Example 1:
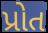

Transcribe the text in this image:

પ્રોત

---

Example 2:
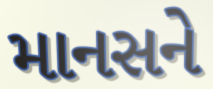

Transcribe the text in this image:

માનસને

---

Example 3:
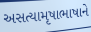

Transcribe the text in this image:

અસત્યામૃષાભાષાને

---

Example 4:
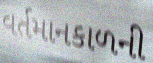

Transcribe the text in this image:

વર્તમાનકાળની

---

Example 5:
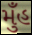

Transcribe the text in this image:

મુઁહ